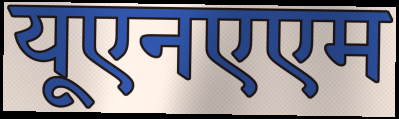
यूएनएएम